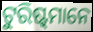
ଟୁରିଷ୍ଟ୍‍ମାନେ